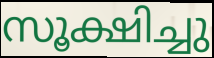
സൂക്ഷിച്ചു